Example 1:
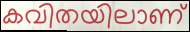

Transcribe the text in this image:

കവിതയിലാണ്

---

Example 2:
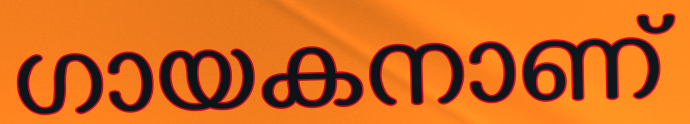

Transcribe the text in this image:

ഗായകനാണ്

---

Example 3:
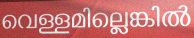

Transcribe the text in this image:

വെള്ളമില്ലെങ്കിൽ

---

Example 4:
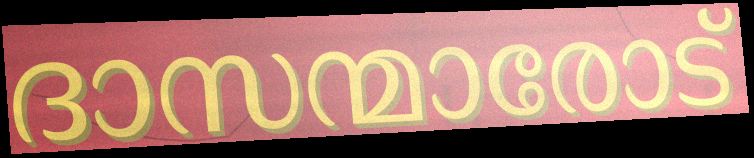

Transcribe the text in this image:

ദാസന്മാരോട്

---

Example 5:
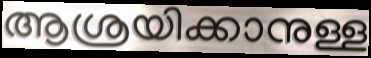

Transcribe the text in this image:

ആശ്രയിക്കാനുള്ള